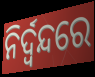
ନିର୍ଦ୍ୱନ୍ଦରେ